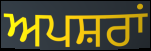
ਅਪਸ਼ਰਾਂ